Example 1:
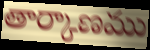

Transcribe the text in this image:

తార్కాణము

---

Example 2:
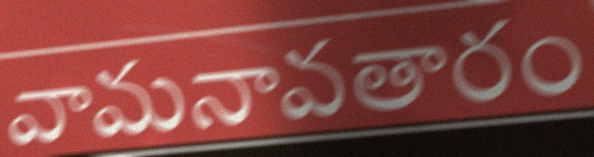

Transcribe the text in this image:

వామనావతారం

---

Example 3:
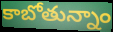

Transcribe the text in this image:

కాబోతున్నాం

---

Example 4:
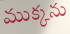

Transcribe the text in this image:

ముక్కను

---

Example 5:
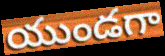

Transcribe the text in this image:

యుండగా